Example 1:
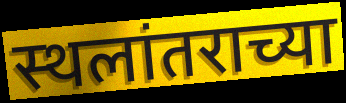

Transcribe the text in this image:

स्थलांतराच्या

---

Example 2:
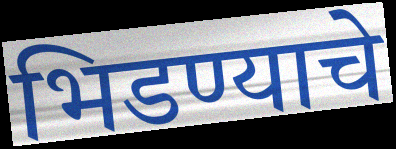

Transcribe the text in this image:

भिडण्याचे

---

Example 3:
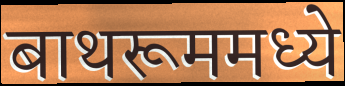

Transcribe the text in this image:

बाथरूममध्ये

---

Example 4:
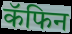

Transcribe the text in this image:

कॅफिन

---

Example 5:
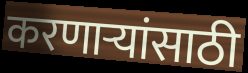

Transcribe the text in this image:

करणाऱ्यांसाठी